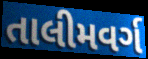
તાલીમવર્ગ